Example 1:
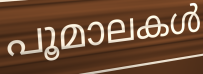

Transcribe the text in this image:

പൂമാലകൾ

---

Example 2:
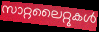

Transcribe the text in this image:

സാറ്റലൈറ്റുകൾ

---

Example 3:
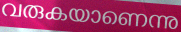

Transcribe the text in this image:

വരുകയാണെന്നു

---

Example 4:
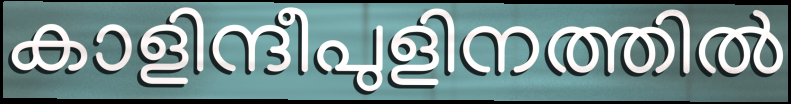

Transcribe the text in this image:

കാളിന്ദീപുളിനത്തിൽ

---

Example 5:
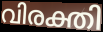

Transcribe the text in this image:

വിരക്തി